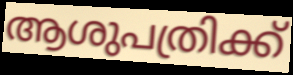
ആശുപത്രിക്ക്